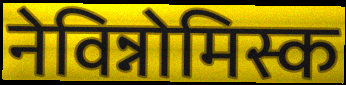
नेविन्नोमिस्क